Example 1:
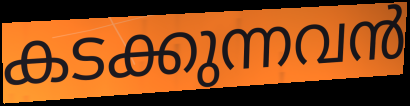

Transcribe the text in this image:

കടക്കുന്നവൻ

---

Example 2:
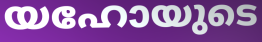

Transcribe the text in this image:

യഹോയുടെ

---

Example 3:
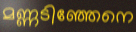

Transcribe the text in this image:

മണ്ണടിഞ്ഞേനെ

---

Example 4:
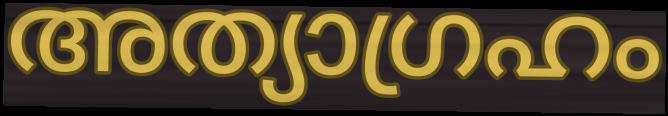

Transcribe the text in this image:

അത്യാഗ്രഹം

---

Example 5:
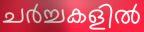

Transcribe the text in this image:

ചർച്ചകളിൽ